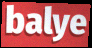
balye